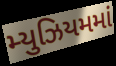
મ્યુઝિયમમાં